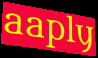
aaply